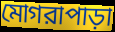
মোগরাপাড়া